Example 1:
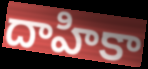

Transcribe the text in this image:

దాహికా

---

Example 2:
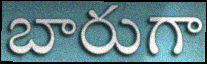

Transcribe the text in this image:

బారుగా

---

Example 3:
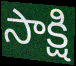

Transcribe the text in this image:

సాక్షి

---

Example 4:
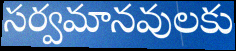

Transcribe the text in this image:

సర్వమానవులకు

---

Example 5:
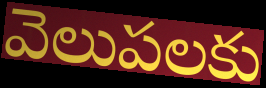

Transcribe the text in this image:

వెలుపలకు